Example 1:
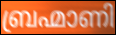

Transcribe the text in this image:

ബ്രഹ്മാണി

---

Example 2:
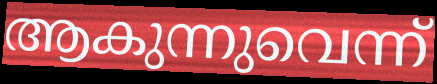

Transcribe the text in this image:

ആകുന്നുവെന്ന്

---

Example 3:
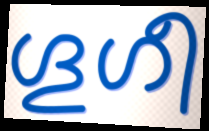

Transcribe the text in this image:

ഗൂഗീ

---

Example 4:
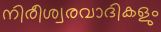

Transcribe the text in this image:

നിരീശ്വരവാദികളും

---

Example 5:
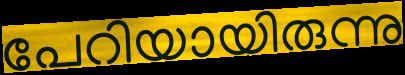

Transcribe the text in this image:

പേറിയായിരുന്നു